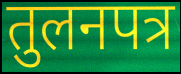
तुलनपत्र